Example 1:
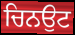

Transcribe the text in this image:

ਚਿਨਉਟ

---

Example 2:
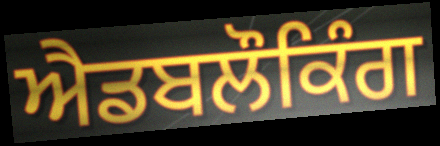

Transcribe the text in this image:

ਐਡਬਲੌਕਿੰਗ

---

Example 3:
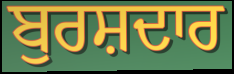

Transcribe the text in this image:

ਬੁਰਸ਼ਦਾਰ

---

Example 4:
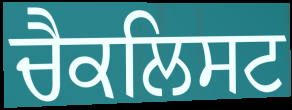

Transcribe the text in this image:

ਚੈਕਲਿਸਟ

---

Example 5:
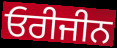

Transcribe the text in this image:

ਓਰੀਜੀਨ